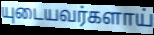
யுடையவர்களாய்